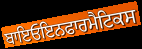
ਬਾਇਓਇਨਫਾਰਮੈਟਿਕਸ